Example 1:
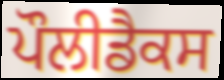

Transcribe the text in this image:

ਪੌਲੀਡੈਕਸ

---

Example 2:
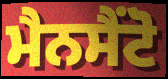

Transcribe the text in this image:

ਮੈਨਸੈਂਟੋ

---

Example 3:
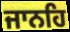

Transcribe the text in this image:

ਜਾਨਹਿ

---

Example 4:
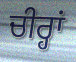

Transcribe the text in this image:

ਚੀਰ੍ਹਾਂ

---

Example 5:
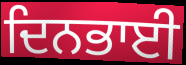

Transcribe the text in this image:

ਦਿਨਭਾਈ